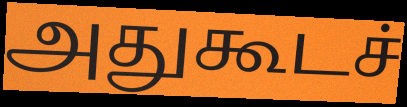
அதுகூடச்